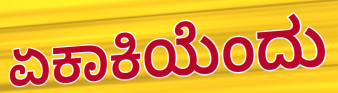
ಏಕಾಕಿಯೆಂದು